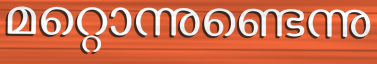
മറ്റൊന്നുണ്ടെന്നു